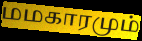
மமகாரமும்